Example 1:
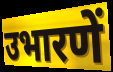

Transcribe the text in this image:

उभारणें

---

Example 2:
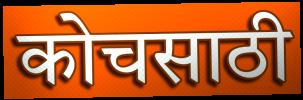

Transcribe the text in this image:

कोचसाठी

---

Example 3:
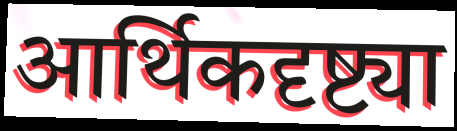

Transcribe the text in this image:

आर्थिकदृष्ट्या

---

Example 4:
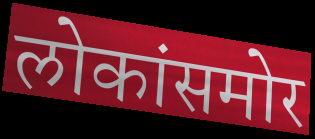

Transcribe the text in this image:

लोकांसमोर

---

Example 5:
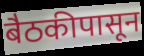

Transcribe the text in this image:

बैठकीपासून